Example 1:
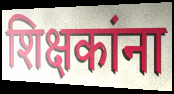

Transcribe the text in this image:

शिक्षकांना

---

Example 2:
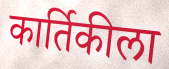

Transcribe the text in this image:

कार्तिकीला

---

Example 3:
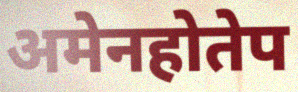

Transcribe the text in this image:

अमेनहोतेप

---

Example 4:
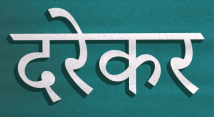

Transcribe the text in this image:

दरेकर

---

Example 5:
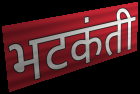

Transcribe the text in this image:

भटकंती